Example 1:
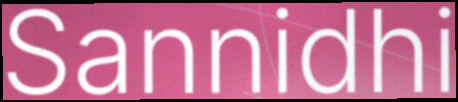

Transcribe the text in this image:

Sannidhi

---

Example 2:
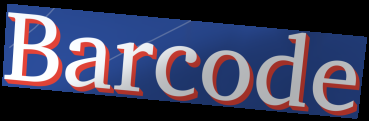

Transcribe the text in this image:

Barcode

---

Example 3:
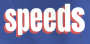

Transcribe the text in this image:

speeds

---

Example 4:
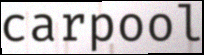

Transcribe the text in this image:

carpool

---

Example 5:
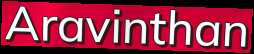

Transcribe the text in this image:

Aravinthan